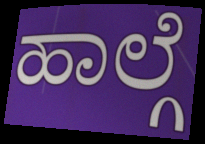
ಹಾಲ್ಗೆ